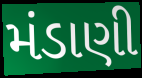
મંડાણી